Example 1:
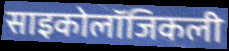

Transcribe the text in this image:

साइकोलॉजिकली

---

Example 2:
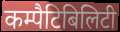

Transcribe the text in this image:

कम्पैटिबिलिटी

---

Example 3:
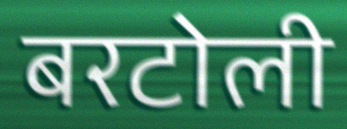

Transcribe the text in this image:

बरटोली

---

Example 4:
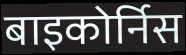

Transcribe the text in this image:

बाइकोर्निस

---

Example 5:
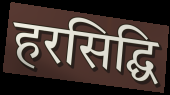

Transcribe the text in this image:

हरसिद्घि